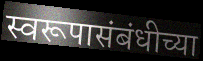
स्वरूपासंबंधीच्या